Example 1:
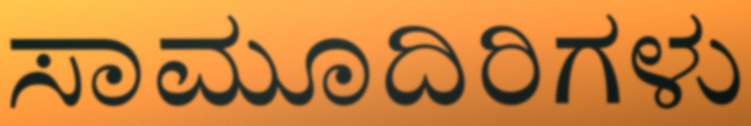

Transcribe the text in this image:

ಸಾಮೂದಿರಿಗಳು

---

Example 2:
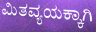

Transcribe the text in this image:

ಮಿತವ್ಯಯಕ್ಕಾಗಿ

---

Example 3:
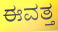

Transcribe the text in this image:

ಈವತ್ತ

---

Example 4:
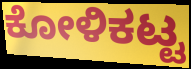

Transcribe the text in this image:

ಕೋಳಿಕಟ್ಟ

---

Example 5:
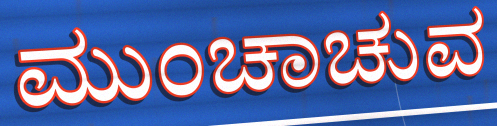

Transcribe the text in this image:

ಮುಂಚಾಚುವ